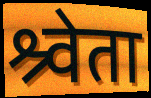
श्र्वेता